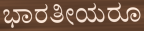
ಭಾರತೀಯರೂ